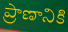
ప్రాణానికి